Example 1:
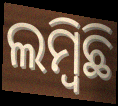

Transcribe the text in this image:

ଲମ୍ବିଛି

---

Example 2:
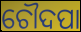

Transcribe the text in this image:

ଚୌଦପା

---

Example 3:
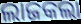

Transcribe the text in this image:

ଲାଜକଲା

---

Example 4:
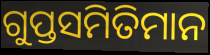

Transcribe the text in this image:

ଗୁପ୍ତସମିତିମାନ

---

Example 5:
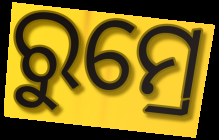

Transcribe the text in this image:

ରୁମ୍ରେ